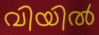
വിയിൽ